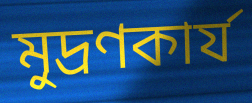
মুদ্রণকার্য